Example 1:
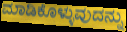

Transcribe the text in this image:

ಮಾಡಿಕೊಳ್ಳುವುದನ್ನು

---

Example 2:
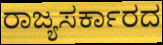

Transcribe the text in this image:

ರಾಜ್ಯಸರ್ಕಾರದ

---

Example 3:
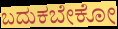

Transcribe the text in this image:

ಬದುಕಬೇಕೋ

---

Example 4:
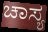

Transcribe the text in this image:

ಚಾಸ್ಯ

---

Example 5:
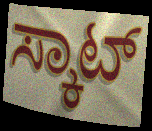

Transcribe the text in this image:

ಸ್ಕಾಟ್